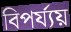
বিপৰ্য্যয়